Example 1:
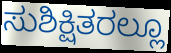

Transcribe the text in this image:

ಸುಶಿಕ್ಷಿತರಲ್ಲೂ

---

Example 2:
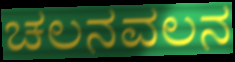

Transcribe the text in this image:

ಚಲನವಲನ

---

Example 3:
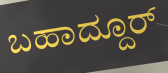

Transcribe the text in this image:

ಬಹಾದ್ದೂರ್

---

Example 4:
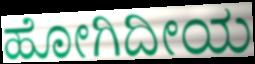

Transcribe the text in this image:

ಹೋಗಿದೀಯ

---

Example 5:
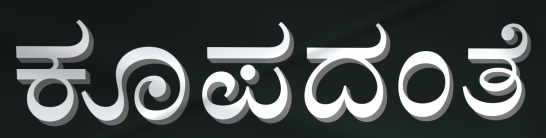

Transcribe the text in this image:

ಕೂಪದಂತೆ